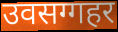
उवसग्गहर